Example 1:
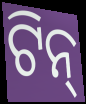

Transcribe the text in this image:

ଟିନ୍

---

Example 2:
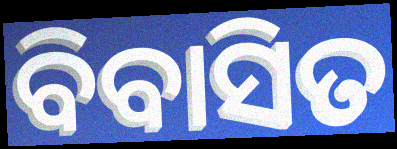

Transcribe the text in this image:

ବିବାସିତ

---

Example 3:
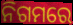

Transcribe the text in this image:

ନିଗମରେ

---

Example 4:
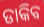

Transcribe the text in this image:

ଡାକିବ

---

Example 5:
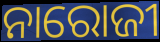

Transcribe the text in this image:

ନାରୋଜୀ